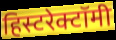
हिस्टरेक्टॉमी